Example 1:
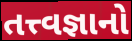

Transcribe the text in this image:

તત્ત્વજ્ઞાનો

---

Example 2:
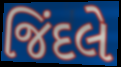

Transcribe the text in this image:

જિંદલે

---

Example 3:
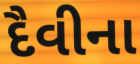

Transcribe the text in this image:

દૈવીના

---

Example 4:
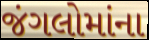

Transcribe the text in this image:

જંગલોમાંના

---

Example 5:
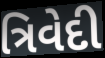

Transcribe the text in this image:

ત્રિવેદી